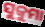
ସୁକୁମା